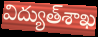
విద్యుత్‌శాఖ